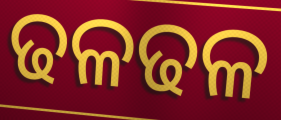
ଢଳଢଳ